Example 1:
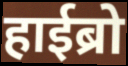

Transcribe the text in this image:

हाईब्रो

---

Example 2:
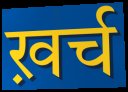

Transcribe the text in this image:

ख़र्च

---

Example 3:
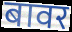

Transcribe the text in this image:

बावर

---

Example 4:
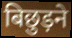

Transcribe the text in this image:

बिछुड़ने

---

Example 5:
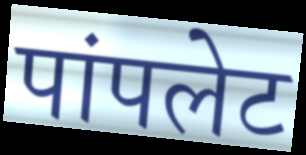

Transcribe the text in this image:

पांपलेट